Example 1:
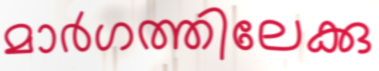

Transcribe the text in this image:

മാർഗത്തിലേക്കു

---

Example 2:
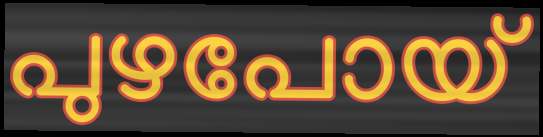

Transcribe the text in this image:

പുഴപോയ്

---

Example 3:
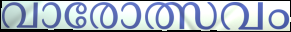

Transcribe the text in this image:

വാരോത്സവം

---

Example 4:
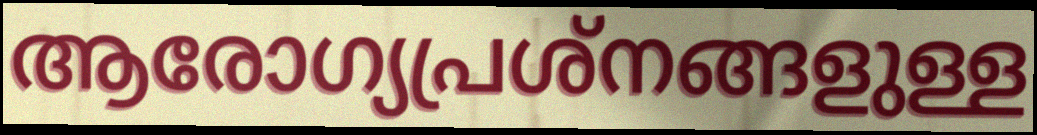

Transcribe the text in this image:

ആരോഗ്യപ്രശ്നങ്ങളുള്ള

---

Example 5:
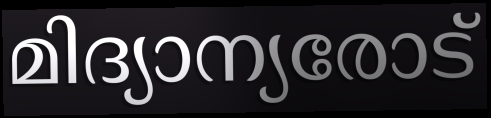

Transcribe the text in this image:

മിദ്യാന്യരോട്